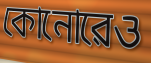
কোনোৱেও